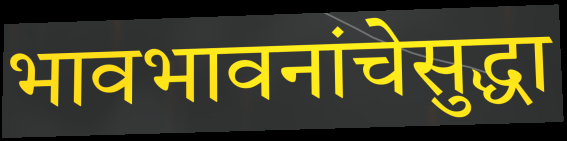
भावभावनांचेसुद्धा